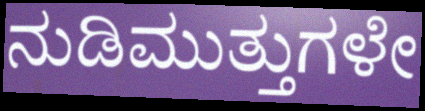
ನುಡಿಮುತ್ತುಗಳೇ